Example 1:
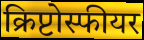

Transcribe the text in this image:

क्रिप्टोस्फीयर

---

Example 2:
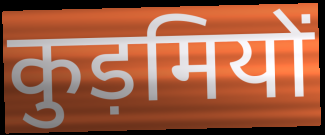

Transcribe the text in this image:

कुड़मियों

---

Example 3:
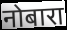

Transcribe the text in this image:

नोबारा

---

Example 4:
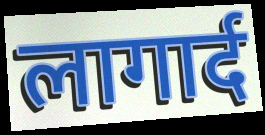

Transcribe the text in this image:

लागार्द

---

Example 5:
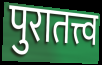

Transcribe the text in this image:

पुरातत्त्व